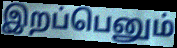
இறப்பெனும்